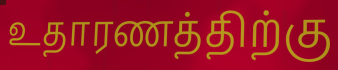
உதாரணத்திற்கு